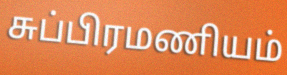
சுப்பிரமணியம்